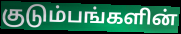
குடும்பங்களின்